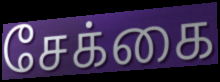
சேக்கை